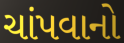
ચાંપવાનો